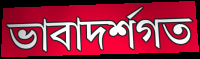
ভাবাদৰ্শগত